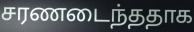
சரணடைந்ததாக